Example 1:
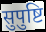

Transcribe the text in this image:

सुपुष्टि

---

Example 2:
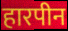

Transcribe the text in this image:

हारपीन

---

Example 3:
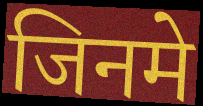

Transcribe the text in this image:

जिनमे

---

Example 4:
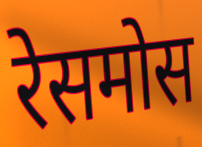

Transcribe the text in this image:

रेसमोस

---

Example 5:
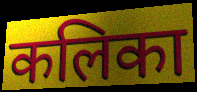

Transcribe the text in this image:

कलिका